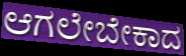
ಆಗಲೇಬೇಕಾದ